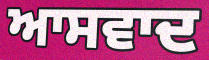
ਆਸਵਾਦ